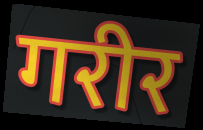
गरीर